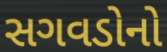
સગવડોનો